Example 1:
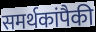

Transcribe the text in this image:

समर्थकांपैकी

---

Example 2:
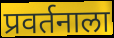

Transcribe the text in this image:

प्रवर्तनाला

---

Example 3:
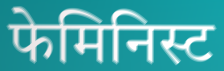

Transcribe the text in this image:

फेमिनिस्ट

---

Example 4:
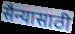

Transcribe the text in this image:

सैन्यासाठी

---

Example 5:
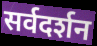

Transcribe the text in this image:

सर्वदर्शन